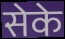
सेके